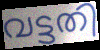
വട്ടതി